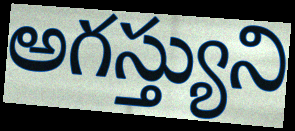
అగస్త్యుని